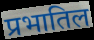
प्रभातिल